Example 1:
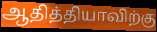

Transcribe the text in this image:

ஆதித்தியாவிற்கு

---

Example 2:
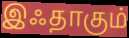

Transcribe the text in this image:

இஃதாகும்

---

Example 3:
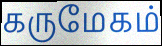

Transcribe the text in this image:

கருமேகம்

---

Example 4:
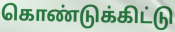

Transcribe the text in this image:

கொண்டுக்கிட்டு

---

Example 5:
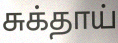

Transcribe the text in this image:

சுக்தாய்